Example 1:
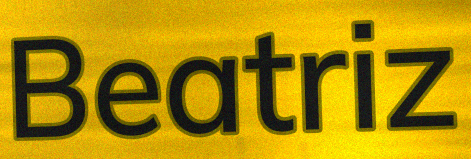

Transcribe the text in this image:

Beatriz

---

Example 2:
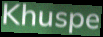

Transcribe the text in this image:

Khuspe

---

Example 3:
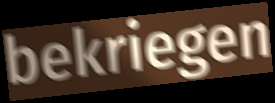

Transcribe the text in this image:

bekriegen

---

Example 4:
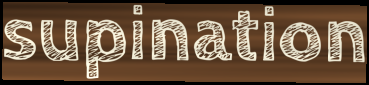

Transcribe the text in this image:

supination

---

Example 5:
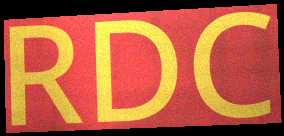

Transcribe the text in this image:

RDC